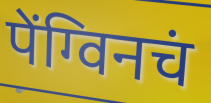
पेंग्विनचं